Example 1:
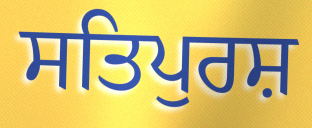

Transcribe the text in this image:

ਸਤਿਪੁਰਸ਼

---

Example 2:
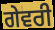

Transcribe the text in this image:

ਗੇਵਰੀ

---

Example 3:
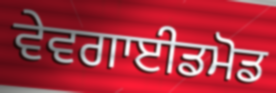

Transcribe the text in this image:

ਵੇਵਗਾਈਡਮੋਡ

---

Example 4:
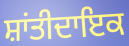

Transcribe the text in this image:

ਸ਼ਾਂਤੀਦਾਇਕ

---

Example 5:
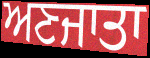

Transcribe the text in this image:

ਅਣਜਾਤਾ